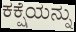
ಕಕ್ಷೆಯನ್ನು